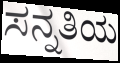
ಸನ್ನತಿಯ